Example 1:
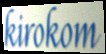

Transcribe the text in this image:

kirokom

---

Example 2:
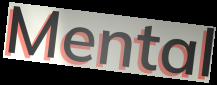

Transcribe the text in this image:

Mental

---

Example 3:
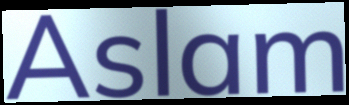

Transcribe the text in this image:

Aslam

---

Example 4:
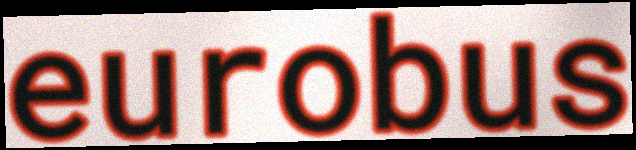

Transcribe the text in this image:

eurobus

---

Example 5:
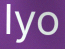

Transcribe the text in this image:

lyo